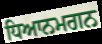
ਧਿਆਨਮਗਨ